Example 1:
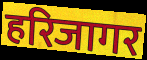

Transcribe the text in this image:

हरिजागर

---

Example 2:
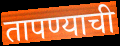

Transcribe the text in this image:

तापण्याची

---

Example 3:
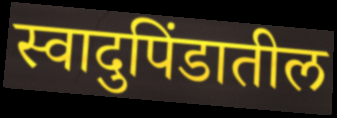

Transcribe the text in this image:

स्वादुपिंडातील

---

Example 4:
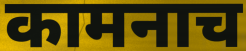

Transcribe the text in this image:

कामनाच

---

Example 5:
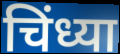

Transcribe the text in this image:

चिंध्या